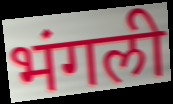
भंगली